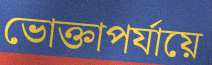
ভোক্তাপর্যায়ে